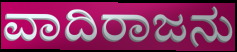
ವಾದಿರಾಜನು